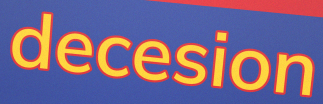
decesion